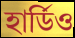
হার্ডিও